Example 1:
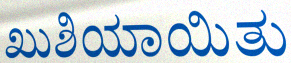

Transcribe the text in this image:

ಖುಶಿಯಾಯಿತು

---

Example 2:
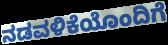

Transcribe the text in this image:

ನಡವಳಿಕೆಯೊಂದಿಗೆ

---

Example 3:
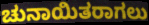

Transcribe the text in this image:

ಚುನಾಯಿತರಾಗಲು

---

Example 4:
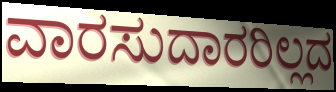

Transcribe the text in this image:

ವಾರಸುದಾರರಿಲ್ಲದ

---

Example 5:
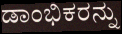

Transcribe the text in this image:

ಡಾಂಭಿಕರನ್ನು